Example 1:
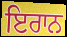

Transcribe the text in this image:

ਇਰਾਨ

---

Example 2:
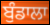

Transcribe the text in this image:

ਬੁੰਡਾਲਾ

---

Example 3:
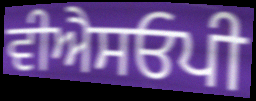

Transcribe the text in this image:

ਵੀਐਸਓਪੀ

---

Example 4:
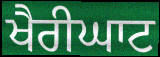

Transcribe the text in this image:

ਖੈਰੀਘਾਟ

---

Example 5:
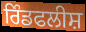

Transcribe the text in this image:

ਰਿੰਡਫਲੀਸ਼